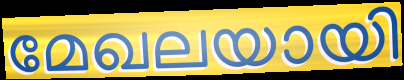
മേഖലയായി